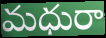
మధురా